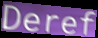
Deref